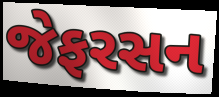
જેફરસન